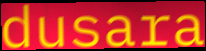
dusara